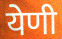
येणी